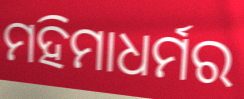
ମହିମାଧର୍ମର